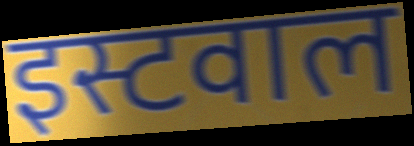
इस्टवाल